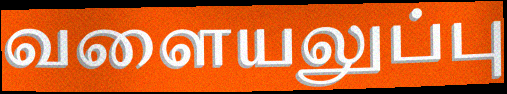
வளையலுப்பு